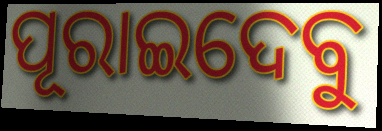
ପୂରାଇଦେବୁ